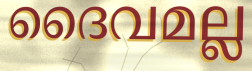
ദൈവമല്ല